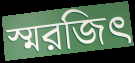
স্মরজিৎ